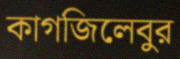
কাগজিলেবুর